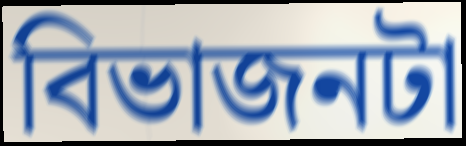
বিভাজনটা